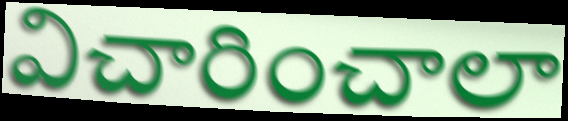
విచారించాలా